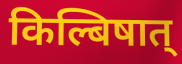
किल्बिषात्